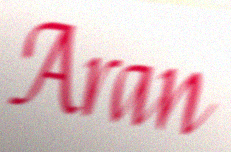
Aran